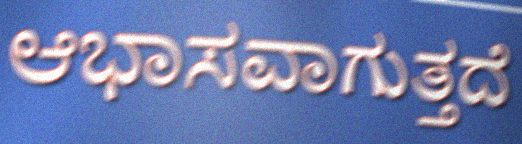
ಆಭಾಸವಾಗುತ್ತದೆ